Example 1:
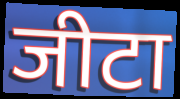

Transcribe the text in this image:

जीटा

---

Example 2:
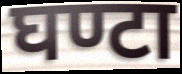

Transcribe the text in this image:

घण्टा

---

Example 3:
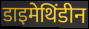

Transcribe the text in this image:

डाइमेथिंडीन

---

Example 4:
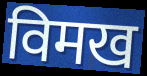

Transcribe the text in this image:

विमख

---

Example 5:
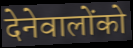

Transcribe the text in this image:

देनेवालोंको